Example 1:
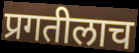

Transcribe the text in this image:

प्रगतीलाच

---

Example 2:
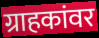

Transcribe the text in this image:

ग्राहकांवर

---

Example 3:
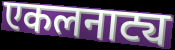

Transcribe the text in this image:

एकलनाट्य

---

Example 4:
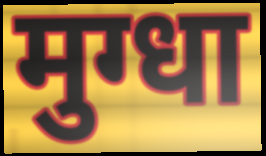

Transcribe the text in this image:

मुग्धा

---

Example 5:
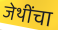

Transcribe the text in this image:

जेथींचा